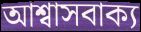
আশ্বাসবাক্য